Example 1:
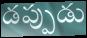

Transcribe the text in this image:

డప్పుడు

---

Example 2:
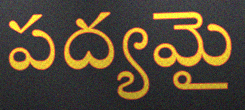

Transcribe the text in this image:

పద్యమై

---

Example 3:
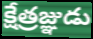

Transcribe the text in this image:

క్షేత్రజ్ఞుడు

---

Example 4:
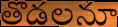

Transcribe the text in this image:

తొడలనూ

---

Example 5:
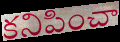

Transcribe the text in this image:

కనిపించా